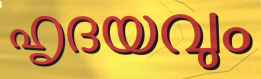
ഹൃദയവും